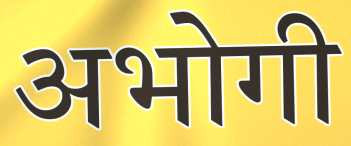
अभोगी